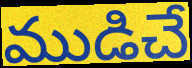
ముడిచే